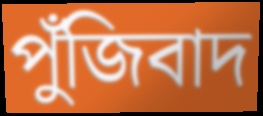
পুঁজিবাদ